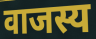
वाजस्य